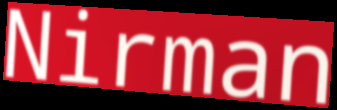
Nirman